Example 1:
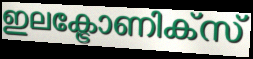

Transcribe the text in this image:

ഇലക്ട്രോണിക്‌സ്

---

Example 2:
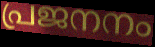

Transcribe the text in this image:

പ്രജനനം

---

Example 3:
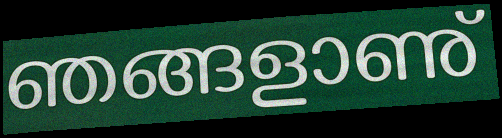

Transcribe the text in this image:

ഞങ്ങളാണു്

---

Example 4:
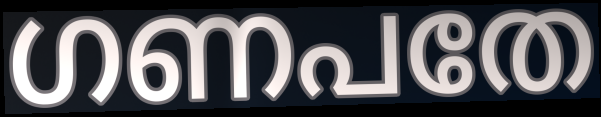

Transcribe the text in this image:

ഗണപതേ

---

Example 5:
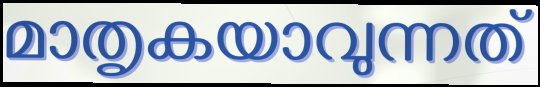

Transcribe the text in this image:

മാതൃകയാവുന്നത്